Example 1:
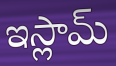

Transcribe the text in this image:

ఇస్లామ్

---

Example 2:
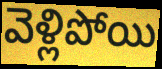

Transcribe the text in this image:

వెళ్లిపోయి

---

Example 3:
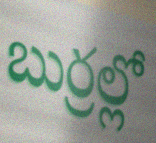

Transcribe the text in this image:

బుర్రల్లో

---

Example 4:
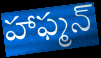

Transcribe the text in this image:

హాఫ్మన్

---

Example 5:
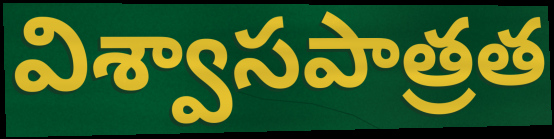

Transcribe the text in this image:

విశ్వాసపాత్రత